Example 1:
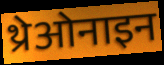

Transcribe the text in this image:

थ्रेओनाइन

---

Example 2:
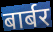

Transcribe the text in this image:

बार्बर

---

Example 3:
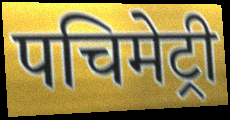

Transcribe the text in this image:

पचिमेट्री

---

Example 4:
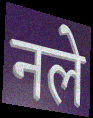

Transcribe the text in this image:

नले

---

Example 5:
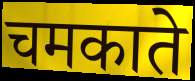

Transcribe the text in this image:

चमकाते